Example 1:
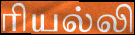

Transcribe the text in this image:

ரியல்லி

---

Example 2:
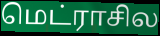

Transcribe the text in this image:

மெட்ராசில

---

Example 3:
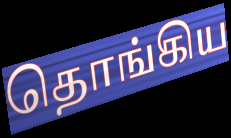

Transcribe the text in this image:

தொங்கிய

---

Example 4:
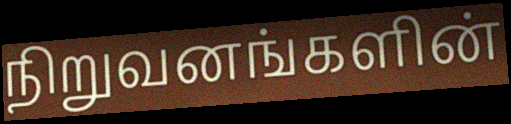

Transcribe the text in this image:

நிறுவனங்களின்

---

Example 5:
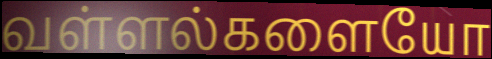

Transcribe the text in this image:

வள்ளல்களையோ